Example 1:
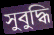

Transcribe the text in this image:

সুবুদ্ধি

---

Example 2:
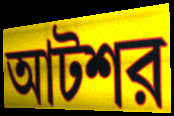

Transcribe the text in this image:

আটশর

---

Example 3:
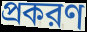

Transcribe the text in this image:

প্রকরণ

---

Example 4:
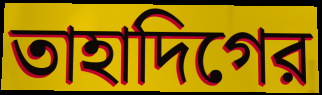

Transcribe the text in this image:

তাহাদিগের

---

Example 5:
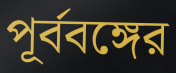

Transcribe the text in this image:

পূর্ববঙ্গের